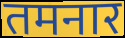
तमनार